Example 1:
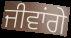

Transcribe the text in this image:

ਜੀਵਾਂਗੇ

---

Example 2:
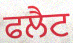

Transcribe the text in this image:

ਫਲੈਟ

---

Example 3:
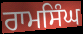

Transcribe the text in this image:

ਰਾਮਸਿੰਘ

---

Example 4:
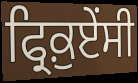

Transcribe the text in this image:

ਫ੍ਰਿਕ਼ੁਏਂਸੀ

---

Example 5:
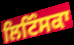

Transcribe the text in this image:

ਲਿਟਿੰਸਕਾ